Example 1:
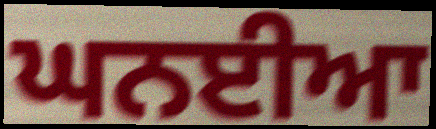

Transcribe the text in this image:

ਘਨਈਆ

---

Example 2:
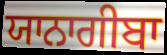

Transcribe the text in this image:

ਯਾਨਾਗੀਬਾ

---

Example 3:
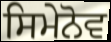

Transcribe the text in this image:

ਸਿਮੇਨੋਵ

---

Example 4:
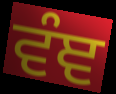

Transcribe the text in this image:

ਵੰਞ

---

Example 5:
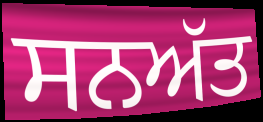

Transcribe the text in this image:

ਸਨਅੱਤ